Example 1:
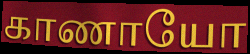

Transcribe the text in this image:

காணாயோ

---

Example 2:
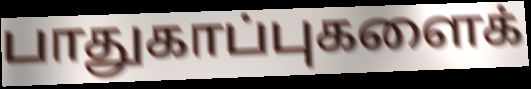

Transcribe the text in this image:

பாதுகாப்புகளைக்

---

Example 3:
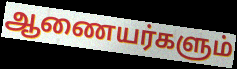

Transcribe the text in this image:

ஆணையர்களும்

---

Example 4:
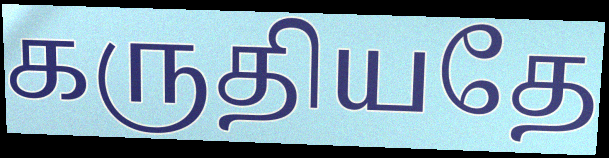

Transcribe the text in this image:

கருதியதே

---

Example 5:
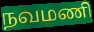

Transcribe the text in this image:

நவமணி